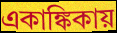
একাঙ্কিকায়